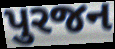
પુરજન